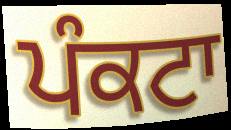
ਪੰਕਟਾ